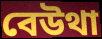
বেউথা